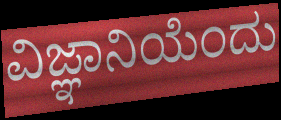
ವಿಜ್ಞಾನಿಯೆಂದು